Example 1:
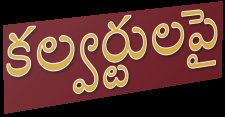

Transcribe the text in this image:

కల్వర్టులపై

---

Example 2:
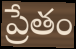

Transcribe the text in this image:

ప్రేతం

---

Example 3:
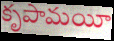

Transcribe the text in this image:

కృపామయీ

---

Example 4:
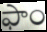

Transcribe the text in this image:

ఫాం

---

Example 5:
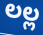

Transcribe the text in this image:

లల్ల